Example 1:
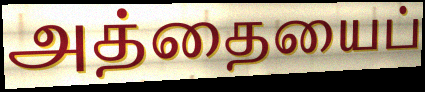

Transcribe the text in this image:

அத்தையைப்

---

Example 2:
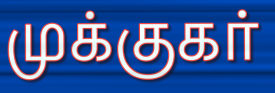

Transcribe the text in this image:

முக்குகர்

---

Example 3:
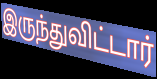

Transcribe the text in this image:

இருந்துவிட்டார்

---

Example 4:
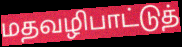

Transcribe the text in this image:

மதவழிபாட்டுத்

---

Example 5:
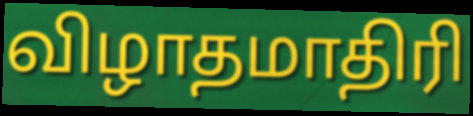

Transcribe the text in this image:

விழாதமாதிரி